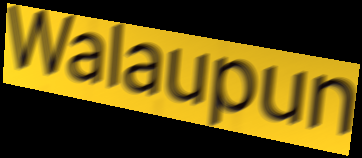
Walaupun